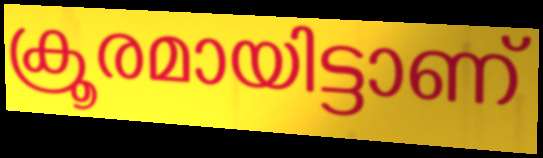
ക്രൂരമായിട്ടാണ്